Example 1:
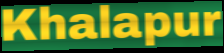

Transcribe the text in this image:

Khalapur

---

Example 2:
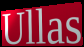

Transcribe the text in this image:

Ullas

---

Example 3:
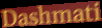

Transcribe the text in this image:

Dashmati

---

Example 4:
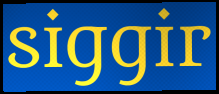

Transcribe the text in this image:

siggir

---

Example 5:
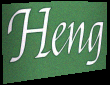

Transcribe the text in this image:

Heng